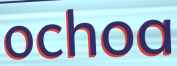
ochoa